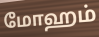
மோஹம்